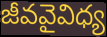
జీవవైవిధ్య